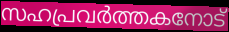
സഹപ്രവർത്തകനോട്